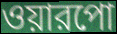
ওয়ারপো